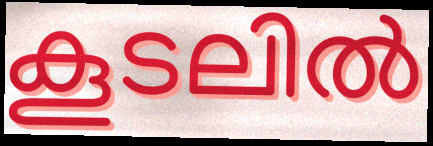
കൂടലിൽ